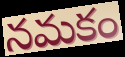
నమకం